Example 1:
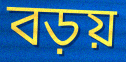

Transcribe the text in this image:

বড়য়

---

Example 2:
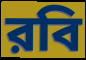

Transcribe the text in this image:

রবি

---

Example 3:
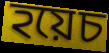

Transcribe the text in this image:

হয়েচ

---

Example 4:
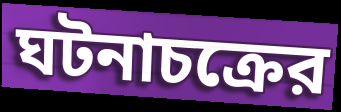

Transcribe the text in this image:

ঘটনাচক্রের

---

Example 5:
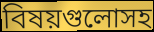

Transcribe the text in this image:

বিষয়গুলোসহ